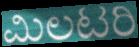
ಮಿಲಟರಿ